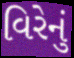
વિરેનું